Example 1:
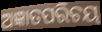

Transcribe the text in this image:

ଅଜ୍ଞାତପରିଚୟ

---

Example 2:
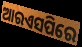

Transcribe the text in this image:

ଆରଏସପିରେ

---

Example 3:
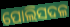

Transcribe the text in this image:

ପୋଲିସଦଳ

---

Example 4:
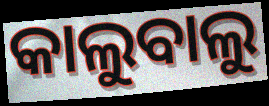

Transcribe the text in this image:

କାଲୁବାଲୁ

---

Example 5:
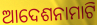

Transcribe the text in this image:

ଆଦେଶନାମାଟି